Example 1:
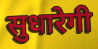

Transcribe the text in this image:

सुधारेगी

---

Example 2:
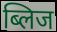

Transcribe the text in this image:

ब्लिज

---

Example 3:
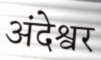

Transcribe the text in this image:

अंदेश्वर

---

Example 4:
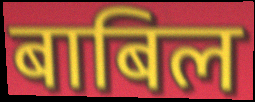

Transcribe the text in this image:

बाबिल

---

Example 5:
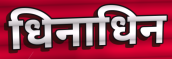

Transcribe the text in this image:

धिनाधिन